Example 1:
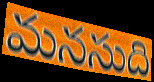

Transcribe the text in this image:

మనసుది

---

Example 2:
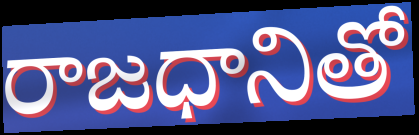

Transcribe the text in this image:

రాజధానితో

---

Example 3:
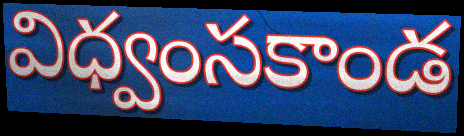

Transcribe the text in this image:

విధ్వంసకాండ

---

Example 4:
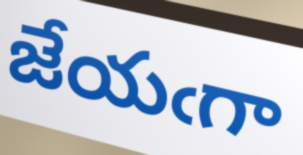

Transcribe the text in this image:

జేయఁగా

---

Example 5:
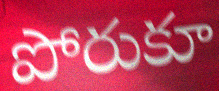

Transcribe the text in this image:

పోరుకూ